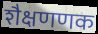
शैक्षणणक